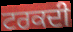
ਟਰਕਦੀ